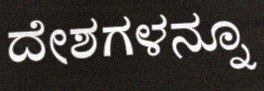
ದೇಶಗಳನ್ನೂ